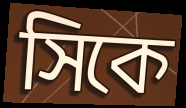
সিকে